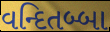
વન્દિતબ્બા